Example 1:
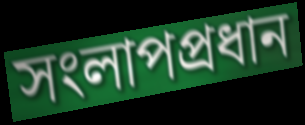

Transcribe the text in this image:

সংলাপপ্রধান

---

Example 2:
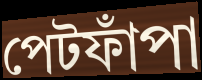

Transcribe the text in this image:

পেটফাঁপা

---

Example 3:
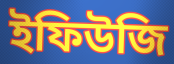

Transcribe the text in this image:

ইফিউজি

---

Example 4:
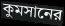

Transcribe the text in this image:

কুমসানের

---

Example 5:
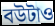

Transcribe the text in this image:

বউটাও